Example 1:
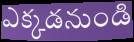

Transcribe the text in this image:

ఎక్కడనుండి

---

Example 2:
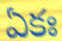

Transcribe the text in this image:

ఏకః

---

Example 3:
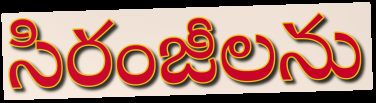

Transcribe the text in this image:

సిరంజీలను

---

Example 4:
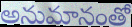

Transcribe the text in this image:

అనుమానంతో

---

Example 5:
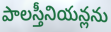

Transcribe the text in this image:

పాలస్తీనియన్లను